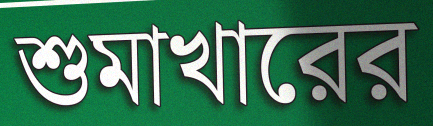
শুমাখারের